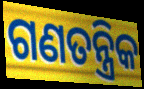
ଗଣତନ୍ତ୍ରିକ